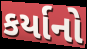
કર્યાનો